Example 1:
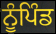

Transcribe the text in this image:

ਨੂੰਪਿੰਡ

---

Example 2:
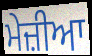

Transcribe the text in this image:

ਮੇਜ਼ੀਆ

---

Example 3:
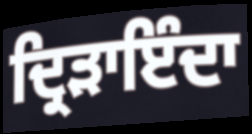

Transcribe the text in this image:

ਦ੍ਰਿੜਾਇੰਦਾ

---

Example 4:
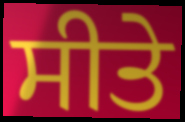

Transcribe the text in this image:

ਸੀਤੇ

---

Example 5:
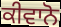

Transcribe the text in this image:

ਕੀਵਾਨੋ